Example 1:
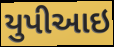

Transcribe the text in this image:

યુપીઆઇ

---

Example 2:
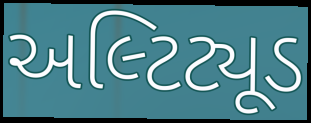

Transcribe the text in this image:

અલ્ટિટ્યૂડ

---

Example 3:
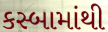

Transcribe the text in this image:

કસ્બામાંથી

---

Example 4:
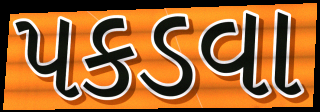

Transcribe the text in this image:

પકડવા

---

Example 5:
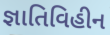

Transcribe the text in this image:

જ્ઞાતિવિહીન